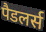
पैडलर्स